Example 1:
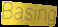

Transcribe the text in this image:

Basing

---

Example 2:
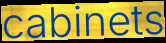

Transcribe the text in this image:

cabinets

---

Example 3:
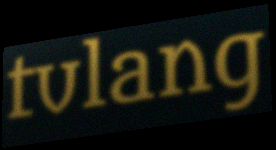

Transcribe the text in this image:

tulang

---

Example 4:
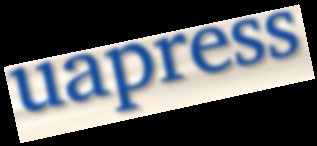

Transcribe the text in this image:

uapress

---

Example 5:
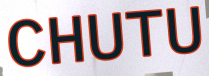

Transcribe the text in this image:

CHUTU